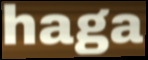
haga